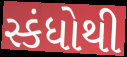
સ્કંધોથી